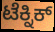
ಟೆಕ್ನಿಕ್